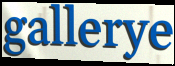
gallerye